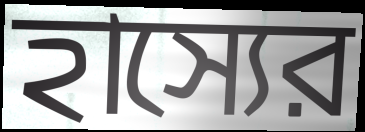
হাস্যের